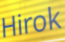
Hirok